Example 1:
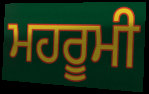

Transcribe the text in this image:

ਮਹਰੂਮੀ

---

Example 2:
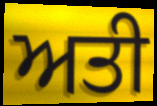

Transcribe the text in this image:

ਅਤੀ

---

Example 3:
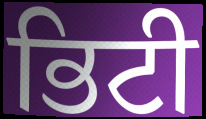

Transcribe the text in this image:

ਭਿਟੀ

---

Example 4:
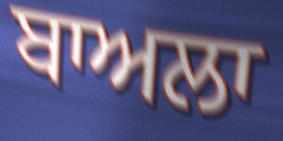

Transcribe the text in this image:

ਬਾਅਲਾ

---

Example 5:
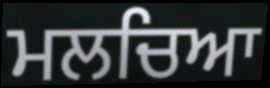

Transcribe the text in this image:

ਮਲਚਿਆ